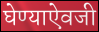
घेण्याऐवजी